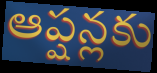
ఆప్షన్లకు